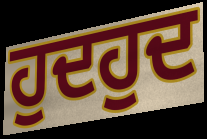
ਹੁਦਹੁਦ